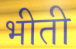
भीती